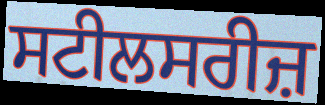
ਸਟੀਲਸਰੀਜ਼